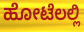
ಹೋಟೆಲಲ್ಲಿ